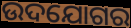
ଉଦଯୋଗର